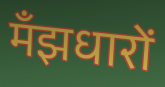
मँझधारों